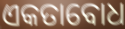
ଏକତାବୋଧ